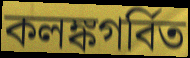
কলঙ্কগর্বিত